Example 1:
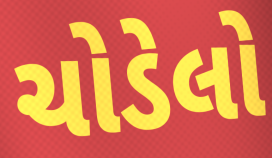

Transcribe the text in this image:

ચોડેલો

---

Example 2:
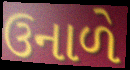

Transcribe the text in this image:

ઉનાળે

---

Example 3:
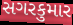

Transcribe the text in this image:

સગરકુમાર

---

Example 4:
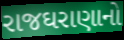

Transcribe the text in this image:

રાજઘરાણાનો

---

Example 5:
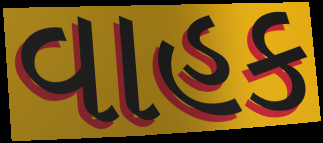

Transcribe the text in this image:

વાહક